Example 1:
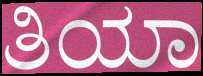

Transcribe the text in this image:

ತಿಯಾ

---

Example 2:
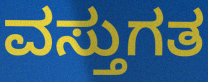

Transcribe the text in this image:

ವಸ್ತುಗತ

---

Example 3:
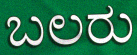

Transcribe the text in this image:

ಬಲರು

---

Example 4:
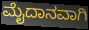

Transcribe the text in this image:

ಮೈದಾನವಾಗಿ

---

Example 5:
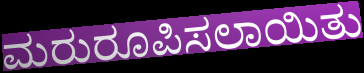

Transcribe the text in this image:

ಮರುರೂಪಿಸಲಾಯಿತು